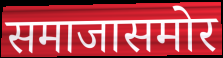
समाजासमोर